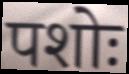
पशोः